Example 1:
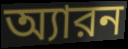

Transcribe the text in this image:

অ্যারন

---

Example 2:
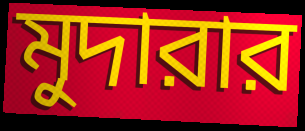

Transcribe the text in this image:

মুদারার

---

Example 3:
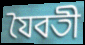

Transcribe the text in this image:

যৈবতী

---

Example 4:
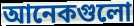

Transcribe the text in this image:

আনেকগুলো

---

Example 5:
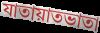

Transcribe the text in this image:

যাতায়াতভাতা